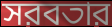
সরবতার